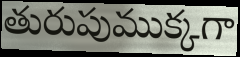
తురుపుముక్కగా